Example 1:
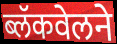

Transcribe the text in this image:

ब्लॅकवेलने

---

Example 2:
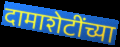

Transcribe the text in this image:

दामाशेटींच्या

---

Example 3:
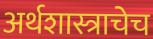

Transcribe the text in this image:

अर्थशास्त्राचेच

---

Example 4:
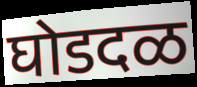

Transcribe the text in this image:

घोडदळ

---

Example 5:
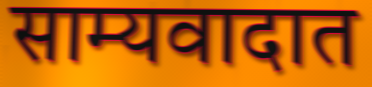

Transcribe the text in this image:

साम्यवादात